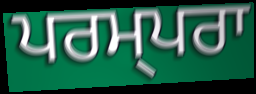
ਪਰਮ੍ਪਰਾ